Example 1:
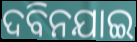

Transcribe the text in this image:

ଦବିନଯାଇ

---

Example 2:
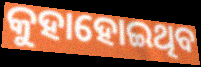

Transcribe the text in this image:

କୁହାହୋଇଥିବ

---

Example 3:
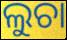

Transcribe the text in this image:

ଲୁଚା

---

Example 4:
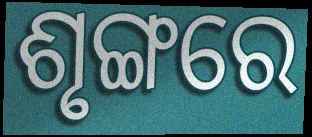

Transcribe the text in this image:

ଶୃଙ୍ଗରେ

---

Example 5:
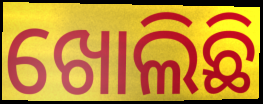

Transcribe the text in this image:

ଖୋଲିଛି